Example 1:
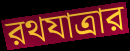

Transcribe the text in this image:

রথযাত্রার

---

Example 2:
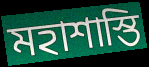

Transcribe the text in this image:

মহাশাস্তি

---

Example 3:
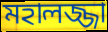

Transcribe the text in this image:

মহালজ্জা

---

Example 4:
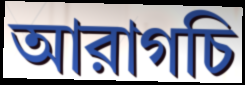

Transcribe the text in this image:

আরাগচি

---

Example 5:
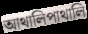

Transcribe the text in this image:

আথালিপাথালি